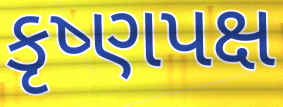
કૃષ્ણપક્ષ